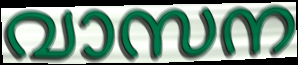
വാസന